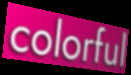
colorful